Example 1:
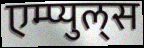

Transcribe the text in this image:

एम्प्युल्स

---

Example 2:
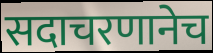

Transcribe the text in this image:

सदाचरणानेच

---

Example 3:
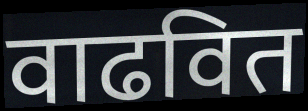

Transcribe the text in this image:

वाढवित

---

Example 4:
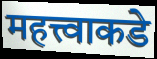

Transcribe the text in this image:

महत्त्वाकडे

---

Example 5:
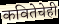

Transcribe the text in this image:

कवितेचेही